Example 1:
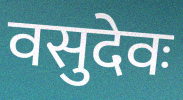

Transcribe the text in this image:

वसुदेवः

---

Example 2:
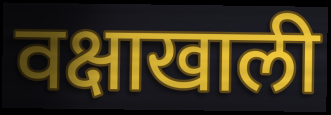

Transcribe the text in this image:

वक्षाखाली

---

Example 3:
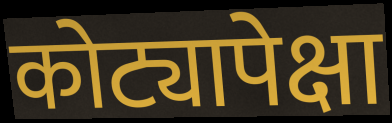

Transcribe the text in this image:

कोट्यापेक्षा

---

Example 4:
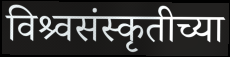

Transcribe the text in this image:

विश्र्वसंस्कृतीच्या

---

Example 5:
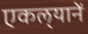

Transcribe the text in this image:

एकल्यानें